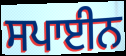
ਸਪਾਈਨ